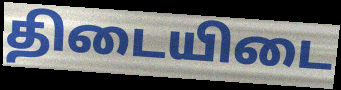
திடையிடை